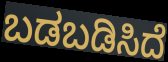
ಬಡಬಡಿಸಿದೆ